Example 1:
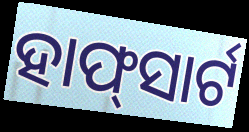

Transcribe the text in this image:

ହାଫ୍‍ସାର୍ଟ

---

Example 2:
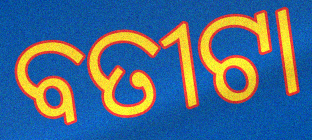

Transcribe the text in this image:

ବତୀଟା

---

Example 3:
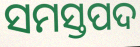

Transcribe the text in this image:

ସମସ୍ତପଦ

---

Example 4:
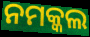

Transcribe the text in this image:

ନମକ୍କଲ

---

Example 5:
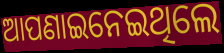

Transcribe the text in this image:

ଆପଣାଇନେଇଥିଲେ